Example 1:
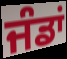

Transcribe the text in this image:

ਜੰਡਾਂ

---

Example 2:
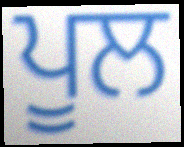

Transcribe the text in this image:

ਪੂਲ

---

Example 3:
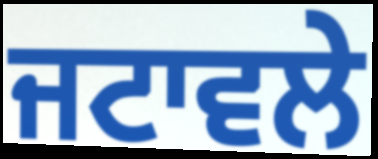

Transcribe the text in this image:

ਜਟਾਵਲੇ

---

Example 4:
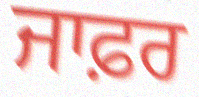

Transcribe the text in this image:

ਜਾਫ਼ਰ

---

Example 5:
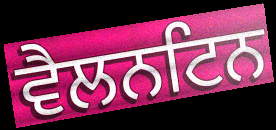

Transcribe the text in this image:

ਵੈਲਨਟਿਨ